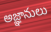
అజ్ఞానులు